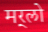
मर्लो